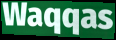
Waqqas